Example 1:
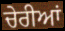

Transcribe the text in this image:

ਚੇਰੀਆਂ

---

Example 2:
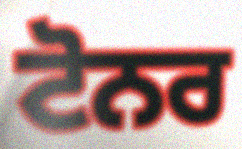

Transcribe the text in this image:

ਟੋਨਰ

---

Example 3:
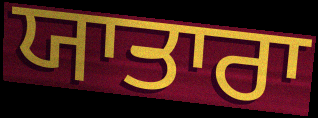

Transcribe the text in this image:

ਯਾਤਾਰਾ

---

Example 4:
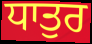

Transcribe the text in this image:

ਧਾਤੁਰ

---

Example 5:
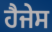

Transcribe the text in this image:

ਹੈਜੇਸ